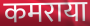
कमराया